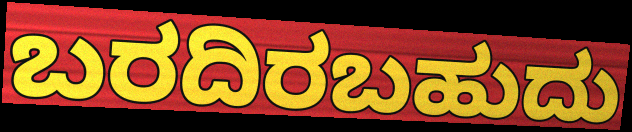
ಬರದಿರಬಹುದು